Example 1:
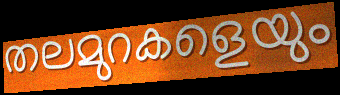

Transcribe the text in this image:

തലമുറകളെയും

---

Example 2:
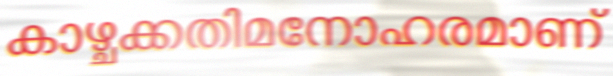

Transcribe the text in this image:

കാഴ്ചക്കതിമനോഹരമാണ്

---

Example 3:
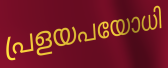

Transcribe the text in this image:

പ്രളയപയോധി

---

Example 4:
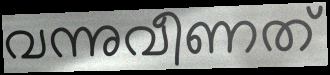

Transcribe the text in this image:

വന്നുവീണത്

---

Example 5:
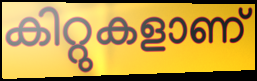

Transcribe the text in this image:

കിറ്റുകളാണ്